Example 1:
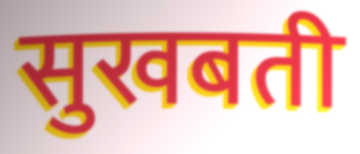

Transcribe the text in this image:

सुखबती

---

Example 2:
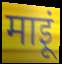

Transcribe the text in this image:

माइूं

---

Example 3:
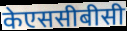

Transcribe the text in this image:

केएससीबीसी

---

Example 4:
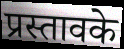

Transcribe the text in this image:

प्रस्तावके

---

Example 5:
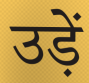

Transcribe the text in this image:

उड़ें